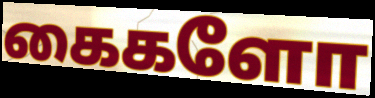
கைகளோ